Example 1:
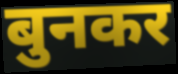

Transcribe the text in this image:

बुनकर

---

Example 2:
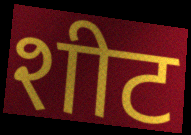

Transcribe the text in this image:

शीट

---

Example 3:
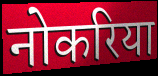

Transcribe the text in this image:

नोकरिया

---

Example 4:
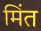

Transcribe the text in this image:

मिंत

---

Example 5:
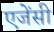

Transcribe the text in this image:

एजेंसी